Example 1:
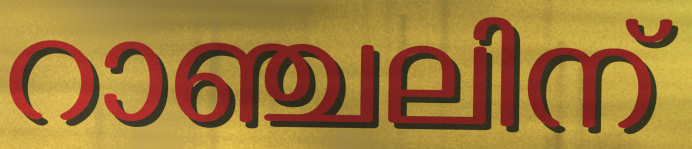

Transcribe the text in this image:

റാഞ്ചലിന്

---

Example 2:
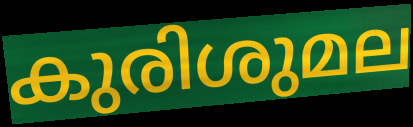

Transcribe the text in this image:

കുരിശുമല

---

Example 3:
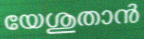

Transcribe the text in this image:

യേശുതാൻ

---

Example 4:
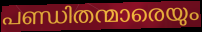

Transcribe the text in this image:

പണ്ഡിതന്മാരെയും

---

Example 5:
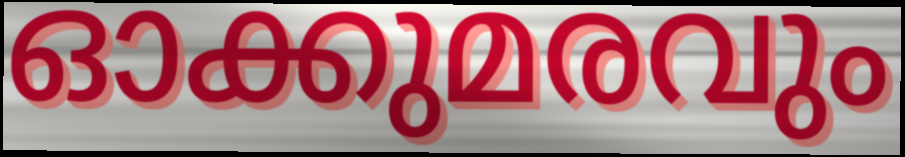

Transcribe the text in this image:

ഓക്കുമരവും